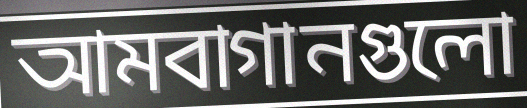
আমবাগানগুলো